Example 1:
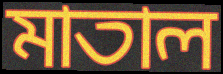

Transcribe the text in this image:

মাতাল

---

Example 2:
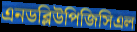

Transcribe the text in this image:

এনডব্লিউপিজিসিএল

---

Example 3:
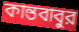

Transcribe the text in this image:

কান্তবাবুর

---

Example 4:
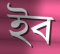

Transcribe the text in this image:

ইব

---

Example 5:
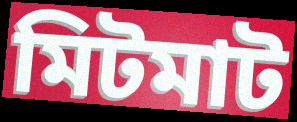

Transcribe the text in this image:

মিটমাট